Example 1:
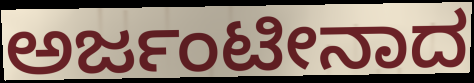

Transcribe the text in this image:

ಅರ್ಜಂಟೀನಾದ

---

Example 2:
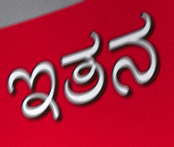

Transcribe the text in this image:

ಇತನ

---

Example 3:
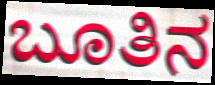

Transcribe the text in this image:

ಬೂತಿನ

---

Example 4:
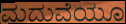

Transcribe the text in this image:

ಮದುವೆಯೂ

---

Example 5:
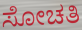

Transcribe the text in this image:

ಸೋಚತಿ